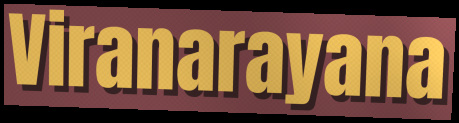
Viranarayana